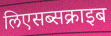
लिएसब्सक्राइब